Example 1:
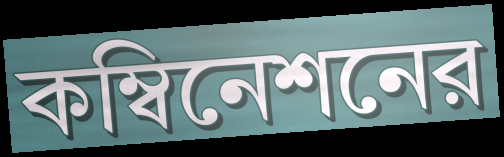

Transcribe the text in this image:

কম্বিনেশনের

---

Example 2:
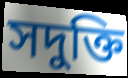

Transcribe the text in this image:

সদুক্তি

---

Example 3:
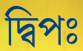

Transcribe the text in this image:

দ্বিপঃ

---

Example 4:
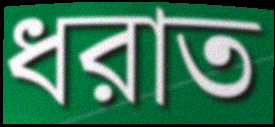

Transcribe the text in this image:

ধরাত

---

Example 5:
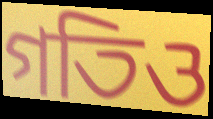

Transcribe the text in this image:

গতিও